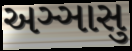
અઞ્ઞાસુ